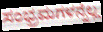
ಸಂಭ್ರಮಗಳನ್ನೆಲ್ಲ